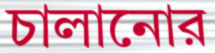
চালানোর